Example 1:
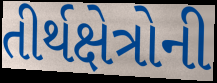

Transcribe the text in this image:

તીર્થક્ષેત્રોની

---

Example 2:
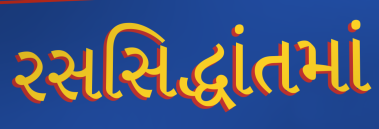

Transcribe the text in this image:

રસસિદ્ધાંતમાં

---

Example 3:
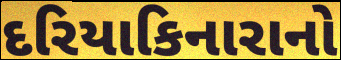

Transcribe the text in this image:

દરિયાકિનારાનો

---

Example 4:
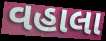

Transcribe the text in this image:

વહાલા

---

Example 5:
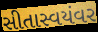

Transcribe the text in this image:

સીતાસ્વયંવર